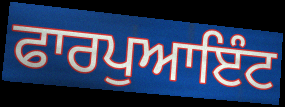
ਫਾਰਪੁਆਇੰਟ